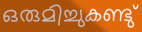
ഒരുമിച്ചുകണ്ടു്